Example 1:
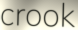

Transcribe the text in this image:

crook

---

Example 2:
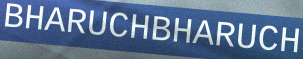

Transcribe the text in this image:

BHARUCHBHARUCH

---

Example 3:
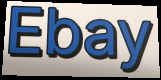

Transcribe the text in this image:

Ebay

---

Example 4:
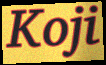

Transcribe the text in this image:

Koji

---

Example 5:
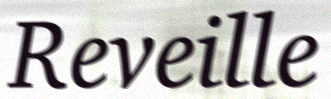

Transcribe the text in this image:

Reveille